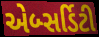
એબ્સર્ડિટી